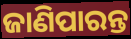
ଜାଣିପାରନ୍ତ